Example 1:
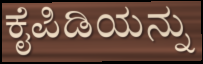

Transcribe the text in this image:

ಕೈಪಿಡಿಯನ್ನು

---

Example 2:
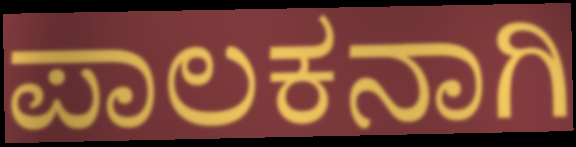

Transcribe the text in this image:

ಪಾಲಕನಾಗಿ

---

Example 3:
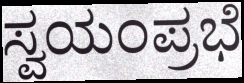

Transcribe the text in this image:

ಸ್ವಯಂಪ್ರಭೆ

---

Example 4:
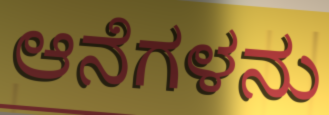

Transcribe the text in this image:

ಆನೆಗಳನು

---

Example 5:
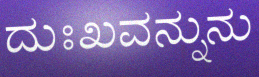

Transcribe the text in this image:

ದುಃಖವನ್ನುನು